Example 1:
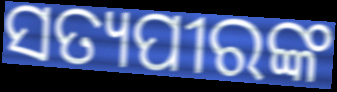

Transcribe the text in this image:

ସତ୍ୟପୀରଙ୍କ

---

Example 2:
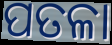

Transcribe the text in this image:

ପତଳା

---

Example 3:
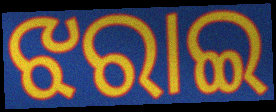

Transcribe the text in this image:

ଝରାଇ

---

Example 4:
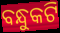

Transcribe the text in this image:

ବନ୍ଧୁକଟି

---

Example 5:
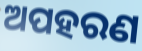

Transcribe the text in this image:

ଅପହରଣ